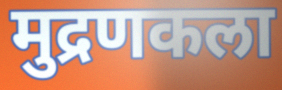
मुद्रणकला